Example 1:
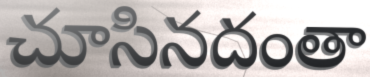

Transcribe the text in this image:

చూసినదంతా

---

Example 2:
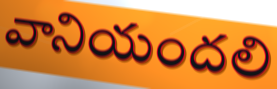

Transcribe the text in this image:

వానియందలి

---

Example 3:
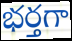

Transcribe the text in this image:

భర్తగా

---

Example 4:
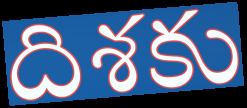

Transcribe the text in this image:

దిశకు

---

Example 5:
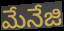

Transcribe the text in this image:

మేనేజి